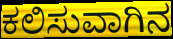
ಕಲಿಸುವಾಗಿನ